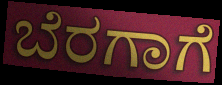
ಬೆರಗಾಗೆ